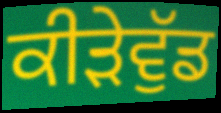
ਕੀੜੇਵੁੱਡ